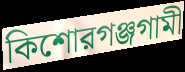
কিশোরগঞ্জগামী